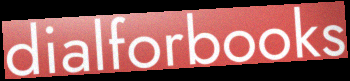
dialforbooks